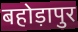
बहोड़ापुर